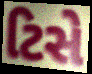
ટિસે